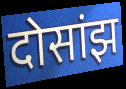
दोसांझ